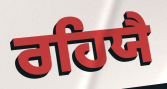
ਰਹਿਯੈ